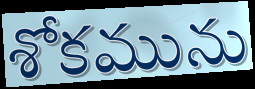
శోకమును